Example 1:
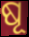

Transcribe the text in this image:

ଷୂ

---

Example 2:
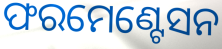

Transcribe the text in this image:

ଫରମେଣ୍ଟେସନ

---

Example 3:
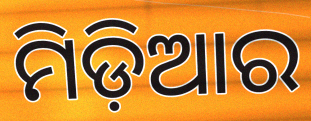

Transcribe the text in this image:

ମିଡ଼ିଆର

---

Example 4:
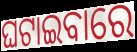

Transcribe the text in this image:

ଘଟାଇବାରେ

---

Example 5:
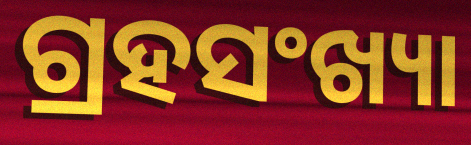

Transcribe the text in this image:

ଗ୍ରହସଂଖ୍ୟା